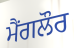
ਮੈਂਗਲੌਰ